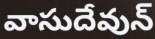
వాసుదేవున్